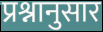
प्रश्नानुसार